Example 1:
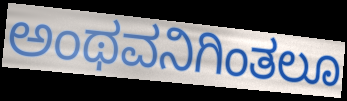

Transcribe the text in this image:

ಅಂಥವನಿಗಿಂತಲೂ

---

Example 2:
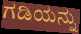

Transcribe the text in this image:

ಗಡಿಯನ್ನು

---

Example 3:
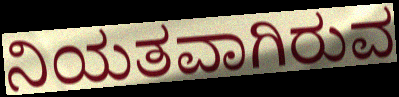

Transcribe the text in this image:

ನಿಯತವಾಗಿರುವ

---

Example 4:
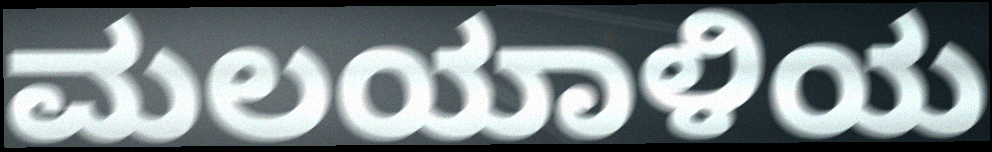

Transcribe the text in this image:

ಮಲಯಾಳಿಯ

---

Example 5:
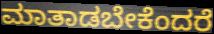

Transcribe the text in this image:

ಮಾತಾಡಬೇಕೆಂದರೆ